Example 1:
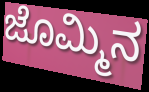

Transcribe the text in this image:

ಜೊಮ್ಮಿನ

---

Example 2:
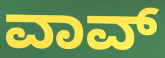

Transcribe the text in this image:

ವಾವ್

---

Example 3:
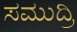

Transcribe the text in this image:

ಸಮುದ್ರಿ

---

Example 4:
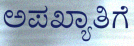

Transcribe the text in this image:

ಅಪಖ್ಯಾತಿಗೆ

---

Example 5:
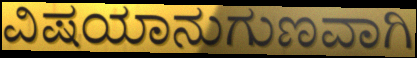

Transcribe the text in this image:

ವಿಷಯಾನುಗುಣವಾಗಿ